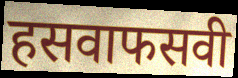
हसवाफसवी